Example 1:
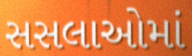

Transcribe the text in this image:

સસલાઓમાં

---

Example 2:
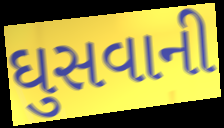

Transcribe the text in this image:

ઘુસવાની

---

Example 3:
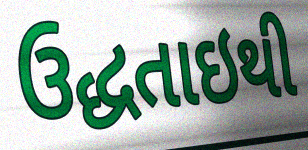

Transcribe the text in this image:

ઉદ્ધતાઇથી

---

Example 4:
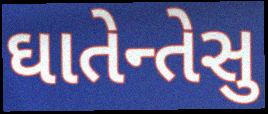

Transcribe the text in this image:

ઘાતેન્તેસુ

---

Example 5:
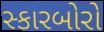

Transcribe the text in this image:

સ્કારબોરો